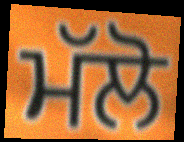
ਮੱਲੋ